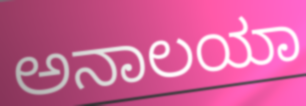
ಅನಾಲಯಾ